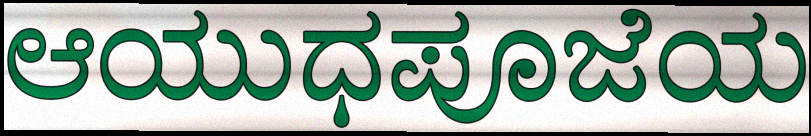
ಆಯುಧಪೂಜೆಯ